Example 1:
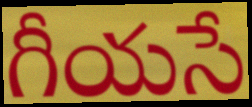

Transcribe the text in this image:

గీయసే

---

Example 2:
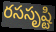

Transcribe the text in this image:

రససృష్టి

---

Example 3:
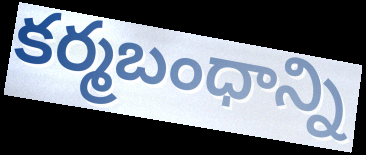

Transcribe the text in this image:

కర్మబంధాన్ని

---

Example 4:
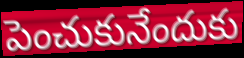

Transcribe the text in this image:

పెంచుకునేందుకు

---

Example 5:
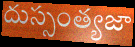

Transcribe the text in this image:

దుస్సంత్యజా